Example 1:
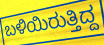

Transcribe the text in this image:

ಬಳಿಯಿರುತ್ತಿದ್ದ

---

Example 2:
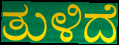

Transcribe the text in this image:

ತುಳಿದೆ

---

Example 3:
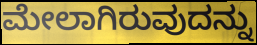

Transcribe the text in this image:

ಮೇಲಾಗಿರುವುದನ್ನು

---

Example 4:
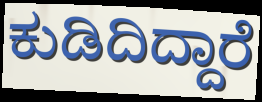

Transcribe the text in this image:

ಕುಡಿದಿದ್ದಾರೆ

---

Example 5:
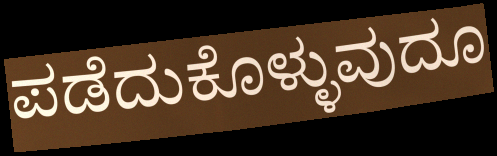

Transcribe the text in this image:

ಪಡೆದುಕೊಳ್ಳುವುದೂ